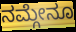
ನಮ್ಗೇನೂ